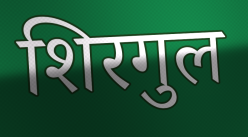
शिरगुल